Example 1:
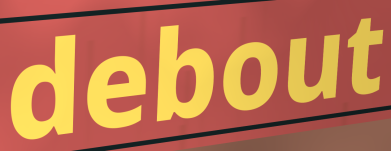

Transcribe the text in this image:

debout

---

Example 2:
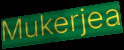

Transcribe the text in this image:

Mukerjea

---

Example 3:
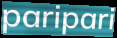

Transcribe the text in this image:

paripari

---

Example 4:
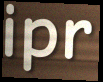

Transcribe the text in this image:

ipr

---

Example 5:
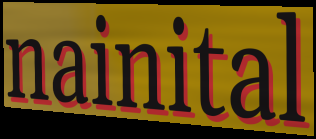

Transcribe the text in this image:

nainital